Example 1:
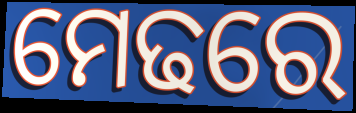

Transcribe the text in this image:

ମେଢରେ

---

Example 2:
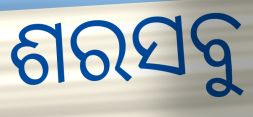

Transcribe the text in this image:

ଶରସବୁ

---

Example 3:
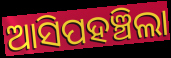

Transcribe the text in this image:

ଆସିପହଞ୍ଚିଲା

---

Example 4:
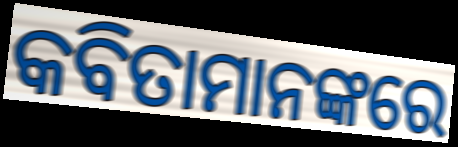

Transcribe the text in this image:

କବିତାମାନଙ୍କରେ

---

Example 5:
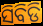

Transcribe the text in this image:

ସିବିଡି